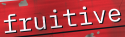
fruitive